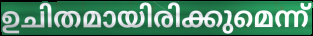
ഉചിതമായിരിക്കുമെന്ന്